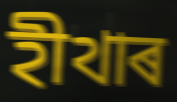
হীথাৰ